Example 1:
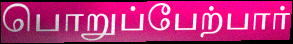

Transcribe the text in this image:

பொறுப்பேற்பார்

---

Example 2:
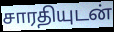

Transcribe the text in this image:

சாரதியுடன்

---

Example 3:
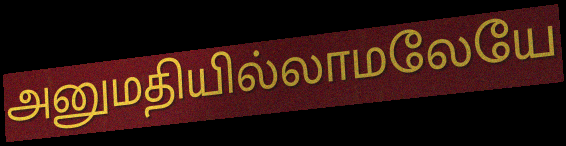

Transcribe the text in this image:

அனுமதியில்லாமலேயே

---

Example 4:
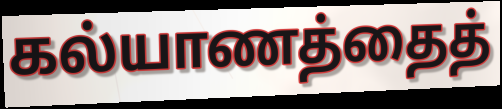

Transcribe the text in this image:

கல்யாணத்தைத்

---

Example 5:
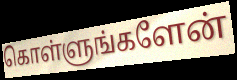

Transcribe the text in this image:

கொள்ளுங்களேன்